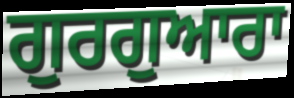
ਗੁਰਗੁਆਰਾ